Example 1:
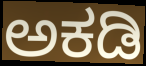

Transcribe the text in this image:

ಅಕಡಿ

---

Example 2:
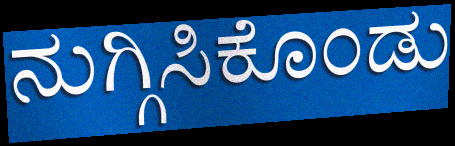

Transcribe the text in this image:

ನುಗ್ಗಿಸಿಕೊಂಡು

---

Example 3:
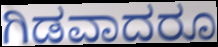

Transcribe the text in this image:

ಗಿಡವಾದರೂ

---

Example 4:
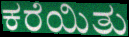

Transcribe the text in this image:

ಕರೆಯಿತು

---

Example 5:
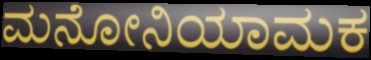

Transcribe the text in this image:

ಮನೋನಿಯಾಮಕ